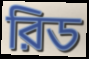
রিড